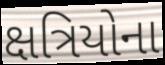
ક્ષત્રિયોના